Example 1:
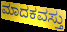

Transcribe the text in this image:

ಮಾದಕವಸ್ತು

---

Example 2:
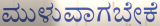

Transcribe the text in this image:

ಮುಳುವಾಗಬೇಕೆ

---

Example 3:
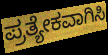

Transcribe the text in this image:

ಪ್ರತ್ಯೇಕವಾಗಿಸಿ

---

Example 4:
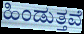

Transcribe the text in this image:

ಹಿಂಡುತ್ತವೆ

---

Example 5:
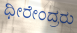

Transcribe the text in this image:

ಧೀರೇಂದ್ರರು